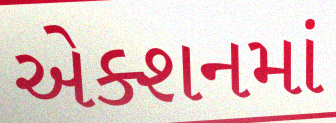
એક્શનમાં